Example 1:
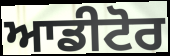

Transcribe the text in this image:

ਆਡੀਟੋਰ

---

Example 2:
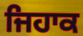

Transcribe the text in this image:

ਜਿਹਾਕ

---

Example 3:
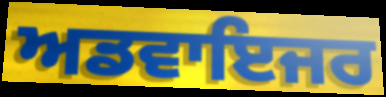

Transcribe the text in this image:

ਅਡਵਾਇਜਰ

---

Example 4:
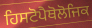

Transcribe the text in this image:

ਹਿਸਟੋਪੈਥੋਲੋਜਿਕ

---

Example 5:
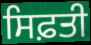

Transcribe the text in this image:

ਸਿਫ਼ਤੀ